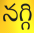
నగ్గి